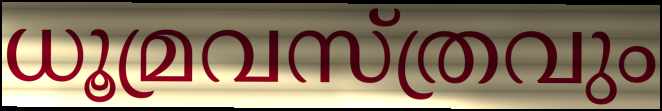
ധൂമ്രവസ്ത്രവും